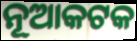
ନୂଆକଟକ